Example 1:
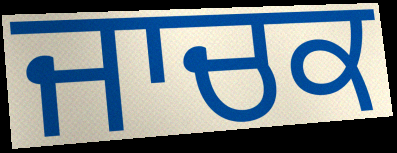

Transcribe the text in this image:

ਜਾਚਕ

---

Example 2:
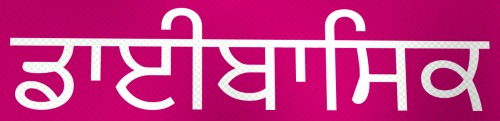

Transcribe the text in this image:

ਡਾਈਬਾਸਿਕ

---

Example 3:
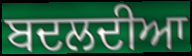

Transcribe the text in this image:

ਬਦਲਦੀਆ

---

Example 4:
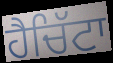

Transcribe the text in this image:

ਹੈਚਿੱਟਾ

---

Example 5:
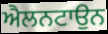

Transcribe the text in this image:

ਐਲਨਟਾਉਨ